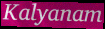
Kalyanam